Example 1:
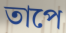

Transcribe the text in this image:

তাপে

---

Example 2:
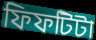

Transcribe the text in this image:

ফিফটিটা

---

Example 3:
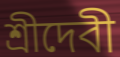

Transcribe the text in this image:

শ্রীদেবী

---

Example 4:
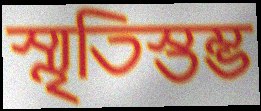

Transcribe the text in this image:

স্মৃতিস্তম্ভ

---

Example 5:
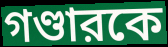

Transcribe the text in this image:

গণ্ডারকে